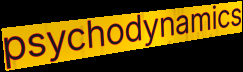
psychodynamics